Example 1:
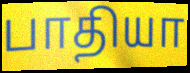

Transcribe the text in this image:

பாதியா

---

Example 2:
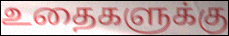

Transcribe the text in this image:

உதைகளுக்கு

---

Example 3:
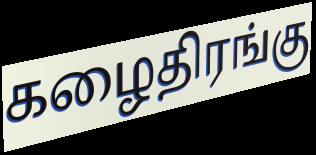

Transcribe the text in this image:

கழைதிரங்கு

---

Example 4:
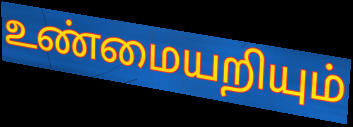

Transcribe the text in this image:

உண்மையறியும்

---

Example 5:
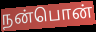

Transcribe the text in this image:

நன்பொன்